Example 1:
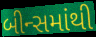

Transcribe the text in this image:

બીન્સમાંથી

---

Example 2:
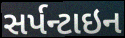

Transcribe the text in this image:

સર્પન્ટાઇન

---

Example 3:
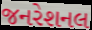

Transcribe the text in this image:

જનરેશનલ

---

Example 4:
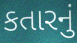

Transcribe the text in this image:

કતારનું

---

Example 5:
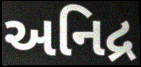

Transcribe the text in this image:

અનિદ્ર